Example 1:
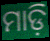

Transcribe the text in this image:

ମାଡ଼ି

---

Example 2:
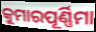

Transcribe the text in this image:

କୁମାରପୂର୍ଣ୍ଣିମା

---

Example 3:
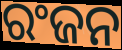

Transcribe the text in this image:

ରଂଜନ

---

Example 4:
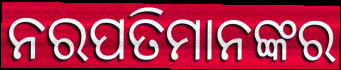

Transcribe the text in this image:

ନରପତିମାନଙ୍କର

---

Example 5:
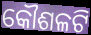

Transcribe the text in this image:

କୌଶଳଟି